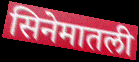
सिनेमातली